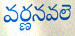
వర్ణనవలె